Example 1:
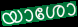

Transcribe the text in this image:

യാശോ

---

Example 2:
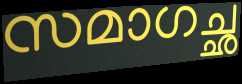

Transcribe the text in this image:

സമാഗച്ഛ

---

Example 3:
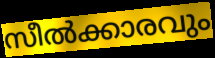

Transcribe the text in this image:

സീൽക്കാരവും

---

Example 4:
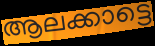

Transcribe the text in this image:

ആലക്കാട്ടെ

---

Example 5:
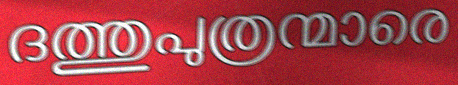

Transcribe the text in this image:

ദത്തുപുത്രന്മാരെ